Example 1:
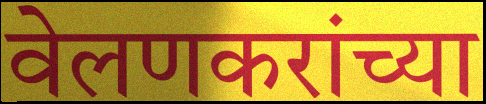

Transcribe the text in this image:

वेलणकरांच्या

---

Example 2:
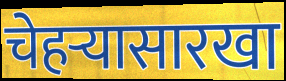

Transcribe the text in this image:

चेहऱ्यासारखा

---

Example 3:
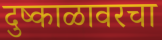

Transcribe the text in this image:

दुष्काळावरचा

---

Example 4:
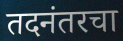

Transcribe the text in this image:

तदनंतरचा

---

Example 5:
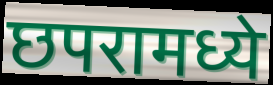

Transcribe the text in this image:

छपरामध्ये